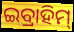
ଇବ୍ରାହିମ୍